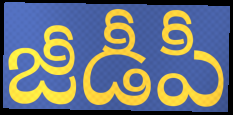
జీడీపీ